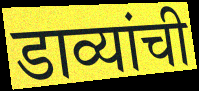
डाव्यांची